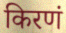
किरणं